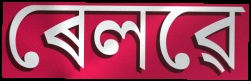
ৰেলৱে